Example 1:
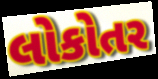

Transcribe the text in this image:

લોકોતર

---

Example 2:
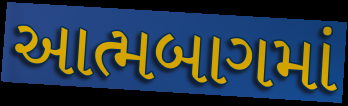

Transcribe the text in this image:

આત્મબાગમાં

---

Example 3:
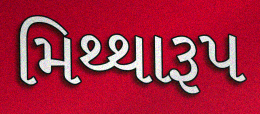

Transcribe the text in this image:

મિથ્થારૂપ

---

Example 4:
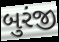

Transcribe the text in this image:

બુરંજી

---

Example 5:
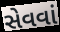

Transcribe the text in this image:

સેવવાં